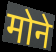
मोने